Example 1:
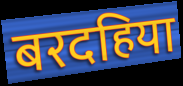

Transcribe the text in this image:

बरदहिया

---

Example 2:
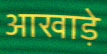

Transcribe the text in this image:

आखाड़े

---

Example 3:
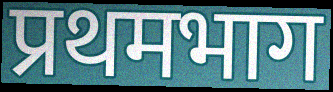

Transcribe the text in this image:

प्रथमभाग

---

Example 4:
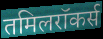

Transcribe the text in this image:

तमिलरॉकर्स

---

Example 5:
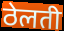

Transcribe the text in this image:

ठेलती